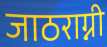
जाठराग्नी